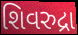
શિવરુદ્રા